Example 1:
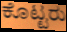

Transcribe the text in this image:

ಕೊಟ್ಟರು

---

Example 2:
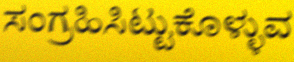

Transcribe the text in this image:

ಸಂಗ್ರಹಿಸಿಟ್ಟುಕೊಳ್ಳುವ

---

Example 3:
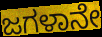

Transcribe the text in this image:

ಜಗಳಾನೇ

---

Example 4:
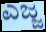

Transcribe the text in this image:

ಎಜ್ಜ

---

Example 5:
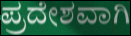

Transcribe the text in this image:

ಪ್ರದೇಶವಾಗಿ